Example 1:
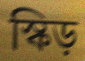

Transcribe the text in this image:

স্কিড়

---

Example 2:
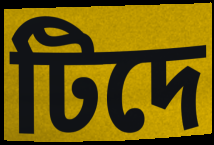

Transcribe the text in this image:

টিদে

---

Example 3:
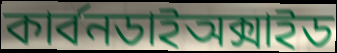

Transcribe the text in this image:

কার্বনডাইঅক্সাইড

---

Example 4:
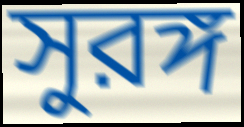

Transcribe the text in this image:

সুরঙ্গ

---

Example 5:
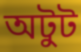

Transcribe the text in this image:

অটুট